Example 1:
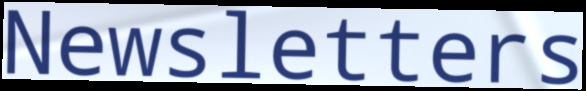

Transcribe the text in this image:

Newsletters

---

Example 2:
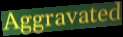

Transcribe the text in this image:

Aggravated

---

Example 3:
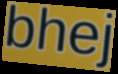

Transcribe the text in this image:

bhej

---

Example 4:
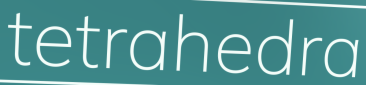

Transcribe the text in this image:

tetrahedra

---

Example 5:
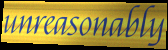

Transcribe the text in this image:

unreasonably